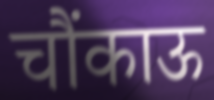
चौंकाऊ